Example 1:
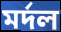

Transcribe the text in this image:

মর্দল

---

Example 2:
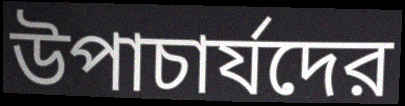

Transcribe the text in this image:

উপাচার্যদের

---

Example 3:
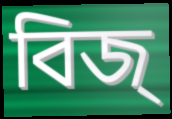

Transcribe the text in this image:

বিজ্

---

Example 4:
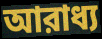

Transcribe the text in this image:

আরাধ্য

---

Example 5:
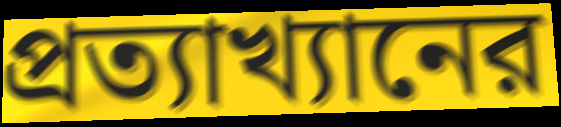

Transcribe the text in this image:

প্রত্যাখ্যানের